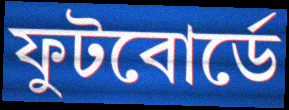
ফুটবোর্ডে